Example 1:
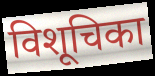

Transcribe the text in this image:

विशूचिका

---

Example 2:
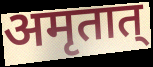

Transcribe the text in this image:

अमृतात्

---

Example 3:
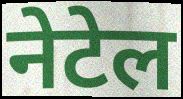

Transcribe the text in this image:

नेटेल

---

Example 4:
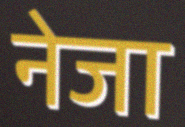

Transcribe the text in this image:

नेजा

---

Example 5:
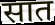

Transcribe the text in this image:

सात